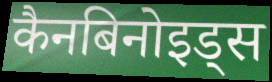
कैनबिनोइड्स